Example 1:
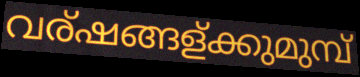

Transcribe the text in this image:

വര്ഷങ്ങള്ക്കുമുമ്പ്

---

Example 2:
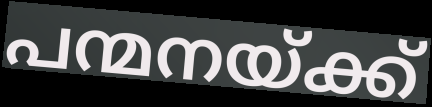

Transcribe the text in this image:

പന്മനയ്ക്ക്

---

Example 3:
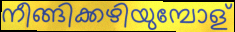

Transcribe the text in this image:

നീങ്ങിക്കഴിയുമ്പോള്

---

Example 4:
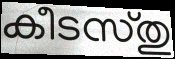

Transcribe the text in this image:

കീടസ്തു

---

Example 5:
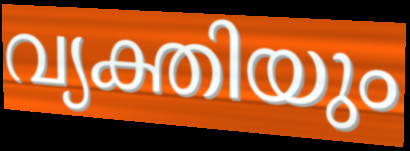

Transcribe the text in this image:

വ്യക്തിയും